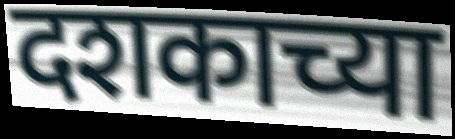
दशकाच्या